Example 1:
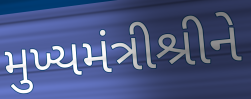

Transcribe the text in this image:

મુખ્યમંત્રીશ્રીને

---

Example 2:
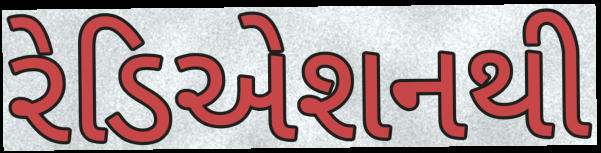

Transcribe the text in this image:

રેડિએશનથી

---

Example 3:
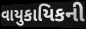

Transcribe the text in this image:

વાયુકાયિકની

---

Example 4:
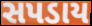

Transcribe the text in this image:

સપડાય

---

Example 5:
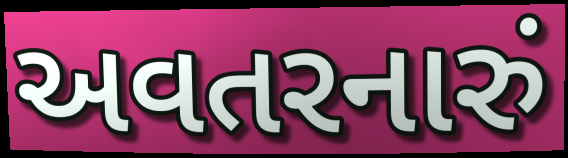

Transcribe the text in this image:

અવતરનારું